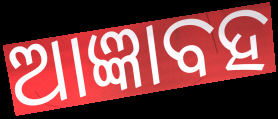
ଆଜ୍ଞାବହ